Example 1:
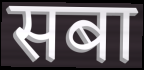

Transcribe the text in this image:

सबा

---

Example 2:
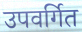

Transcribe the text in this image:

उपवर्गित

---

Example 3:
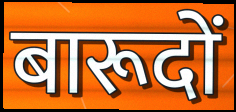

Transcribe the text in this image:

बारूदों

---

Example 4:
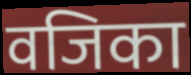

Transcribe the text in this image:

वजिका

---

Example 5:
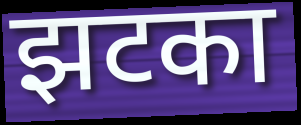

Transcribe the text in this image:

झटका